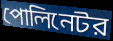
পোলিনেটর